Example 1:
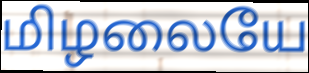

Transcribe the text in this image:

மிழலையே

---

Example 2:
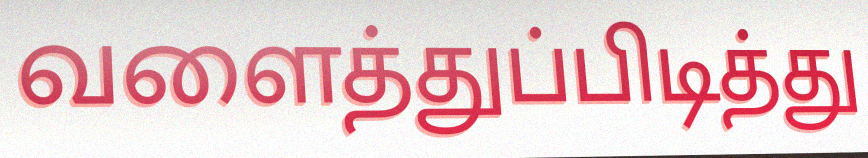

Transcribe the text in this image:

வளைத்துப்பிடித்து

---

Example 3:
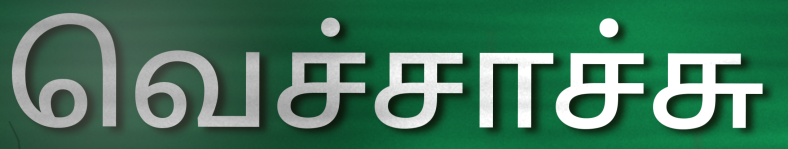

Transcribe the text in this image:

வெச்சாச்சு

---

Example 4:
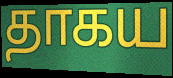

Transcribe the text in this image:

தாகய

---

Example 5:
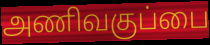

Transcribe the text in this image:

அணிவகுப்பை